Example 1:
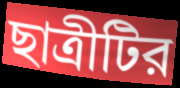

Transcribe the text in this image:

ছাত্রীটির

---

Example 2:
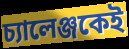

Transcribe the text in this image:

চ্যালেঞ্জকেই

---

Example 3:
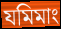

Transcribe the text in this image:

যমিমাং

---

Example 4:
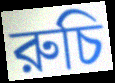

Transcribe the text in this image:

রুচি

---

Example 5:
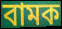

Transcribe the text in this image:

বামক